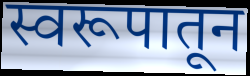
स्वरूपातून